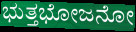
ಭುತ್ತಭೋಜನೋ